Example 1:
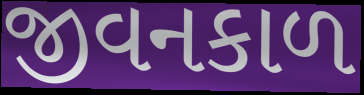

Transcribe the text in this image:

જીવનકાળ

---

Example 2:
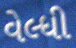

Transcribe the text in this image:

વેલ્ધી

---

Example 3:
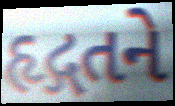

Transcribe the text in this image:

હૃદ્ગતને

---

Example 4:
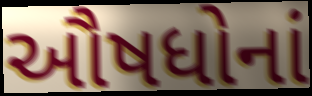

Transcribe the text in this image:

ઔષધોનાં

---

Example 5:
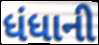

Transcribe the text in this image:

ધંધાની